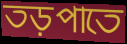
তড়পাতে